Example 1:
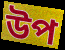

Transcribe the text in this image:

উপ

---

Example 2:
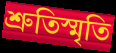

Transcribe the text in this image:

শ্রুতিস্মৃতি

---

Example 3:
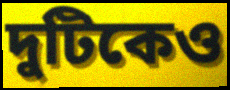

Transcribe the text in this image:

দুটিকেও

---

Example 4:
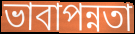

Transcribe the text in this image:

ভাবাপন্নতা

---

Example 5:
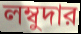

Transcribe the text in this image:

লম্বুদার